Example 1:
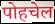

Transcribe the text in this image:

पोहचेल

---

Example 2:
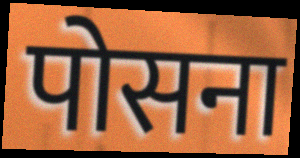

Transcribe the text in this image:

पोसना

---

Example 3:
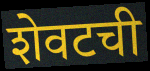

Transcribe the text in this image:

शेवटची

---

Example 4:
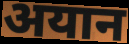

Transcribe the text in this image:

अयान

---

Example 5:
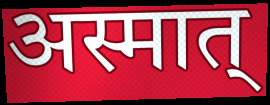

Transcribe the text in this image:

अस्मात्